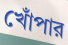
খোঁপার